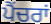
ਪੈਂਚਰਾਂ